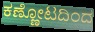
ಕಣ್ಣೋಟದಿಂದ